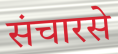
संचारसे